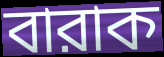
বারাক